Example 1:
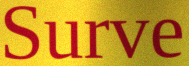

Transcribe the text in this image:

Surve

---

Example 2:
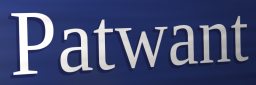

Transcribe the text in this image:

Patwant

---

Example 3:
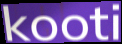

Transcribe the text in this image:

kooti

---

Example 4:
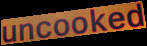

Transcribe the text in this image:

uncooked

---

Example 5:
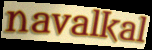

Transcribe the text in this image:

navalkal